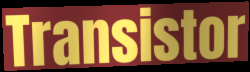
Transistor